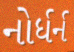
નોર્ધર્ન